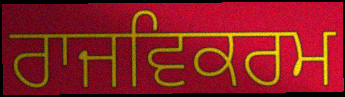
ਰਾਜਵਿਕਰਮ